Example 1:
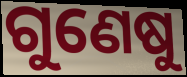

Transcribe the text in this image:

ଗୁଣେଷୁ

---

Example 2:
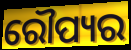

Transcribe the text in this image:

ରୌପ୍ୟର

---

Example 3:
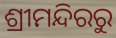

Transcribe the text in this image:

ଶ୍ରୀମନ୍ଦିରରୁ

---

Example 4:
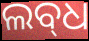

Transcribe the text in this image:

ଲବ୍‍ଧ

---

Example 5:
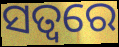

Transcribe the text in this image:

ସତ୍ଵରେ